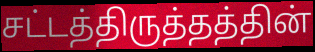
சட்டத்திருத்தத்தின்